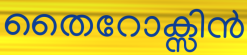
തൈറോക്സിൻ